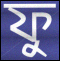
ফু